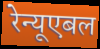
रेन्यूएबल